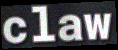
claw